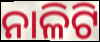
ନାଳିଟି